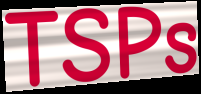
TSPs